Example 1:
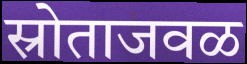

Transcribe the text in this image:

स्रोताजवळ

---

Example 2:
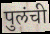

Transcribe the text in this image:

पुलंची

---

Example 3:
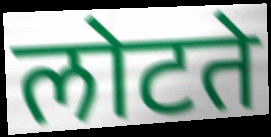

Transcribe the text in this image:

लोटते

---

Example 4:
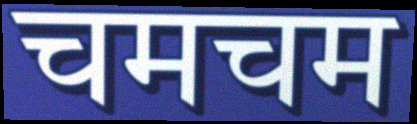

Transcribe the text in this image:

चमचम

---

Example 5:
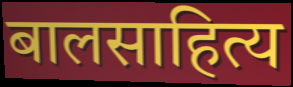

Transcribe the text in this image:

बालसाहित्य